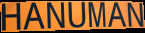
HANUMAN